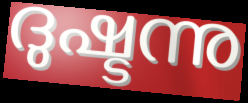
ദുഷ്ടന്നു